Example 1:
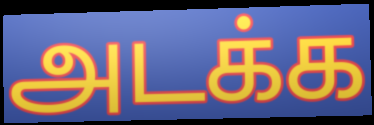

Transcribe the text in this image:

அடக்க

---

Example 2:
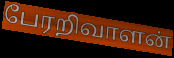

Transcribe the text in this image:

பேரறிவாளன்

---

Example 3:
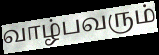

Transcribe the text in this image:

வாழ்பவரும்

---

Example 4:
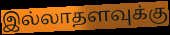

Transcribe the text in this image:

இல்லாதளவுக்கு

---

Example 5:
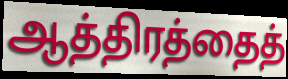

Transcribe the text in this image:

ஆத்திரத்தைத்